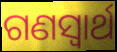
ଗଣସ୍ୱାର୍ଥ